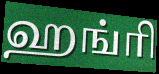
ஹங்ரி